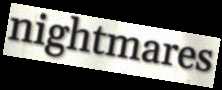
nightmares